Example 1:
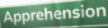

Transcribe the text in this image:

Apprehension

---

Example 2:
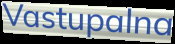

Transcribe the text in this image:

Vastupalna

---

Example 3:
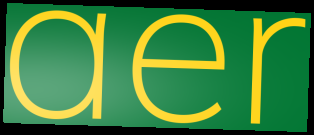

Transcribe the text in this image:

aer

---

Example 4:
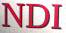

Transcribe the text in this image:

NDI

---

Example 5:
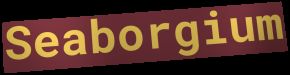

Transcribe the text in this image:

Seaborgium